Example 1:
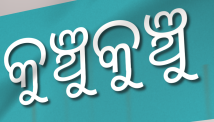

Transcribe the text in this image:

କୁଞ୍ଚୁକୁଞ୍ଚୁ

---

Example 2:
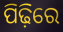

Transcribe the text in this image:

ପିଢ଼ିରେ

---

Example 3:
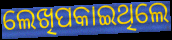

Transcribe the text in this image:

ଲେଖିପକାଇଥିଲେ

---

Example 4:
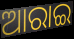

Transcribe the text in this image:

ଆରାଇ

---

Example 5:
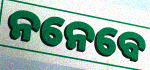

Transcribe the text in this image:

ନନେବେ